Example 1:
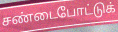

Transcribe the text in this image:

சண்டைபோட்டுக்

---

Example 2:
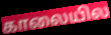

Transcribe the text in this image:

காலையில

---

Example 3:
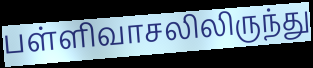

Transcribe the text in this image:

பள்ளிவாசலிலிருந்து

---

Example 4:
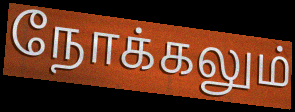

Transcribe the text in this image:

நோக்கலும்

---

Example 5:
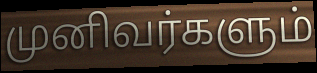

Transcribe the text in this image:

முனிவர்களும்